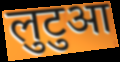
लुटुआ